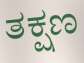
ತಕ್ಷಣ